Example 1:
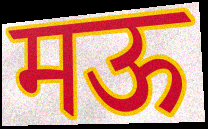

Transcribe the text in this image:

मऊ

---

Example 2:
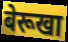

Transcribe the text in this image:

बेरूखा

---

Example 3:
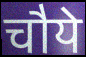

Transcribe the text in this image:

चौये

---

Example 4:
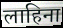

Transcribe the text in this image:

लाहिना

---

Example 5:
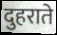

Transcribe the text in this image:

दुहराते